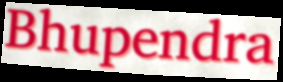
Bhupendra